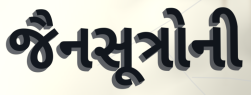
જૈનસૂત્રોની